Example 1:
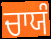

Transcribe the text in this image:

ਚਾਯੰ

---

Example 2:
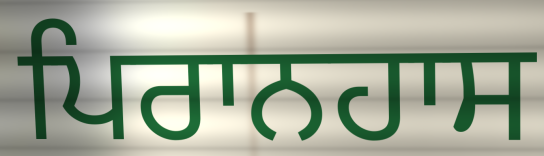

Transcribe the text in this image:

ਪਿਰਾਨਹਾਸ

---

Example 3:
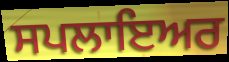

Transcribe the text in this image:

ਸਪਲਾਇਅਰ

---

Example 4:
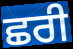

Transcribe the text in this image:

ਛਰੀ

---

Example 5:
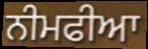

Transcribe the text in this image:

ਨੀਮਫੀਆ